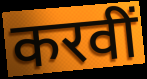
करवीं